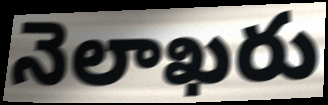
నెలాఖరు